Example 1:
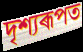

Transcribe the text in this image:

দৃশ্যৰূপত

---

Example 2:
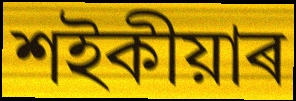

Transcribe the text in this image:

শইকীয়াৰ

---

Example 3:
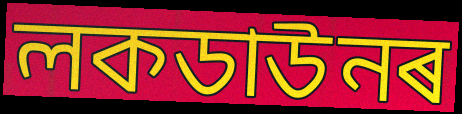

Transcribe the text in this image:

লকডাউনৰ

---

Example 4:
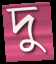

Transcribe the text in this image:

দু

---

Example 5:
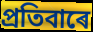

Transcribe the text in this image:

প্ৰতিবাৰে